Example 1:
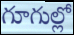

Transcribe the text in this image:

గూగుల్లో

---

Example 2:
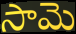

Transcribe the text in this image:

సామె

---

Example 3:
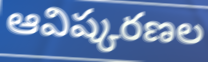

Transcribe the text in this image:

ఆవిష్కరణల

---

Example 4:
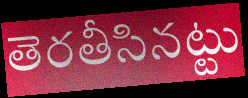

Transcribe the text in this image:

తెరతీసినట్టు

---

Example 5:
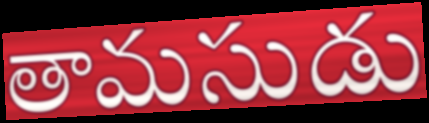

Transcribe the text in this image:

తామసుడు